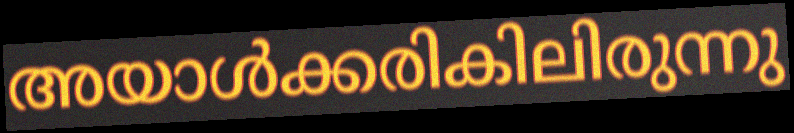
അയാൾക്കരികിലിരുന്നു